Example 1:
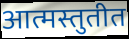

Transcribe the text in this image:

आत्मस्तुतीत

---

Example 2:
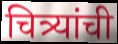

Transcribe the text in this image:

चित्र्यांची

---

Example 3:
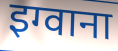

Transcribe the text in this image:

इग्वाना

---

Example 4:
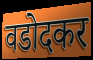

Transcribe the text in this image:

वडोदकर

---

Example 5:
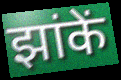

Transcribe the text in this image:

झांकें